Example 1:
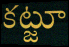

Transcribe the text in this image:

కట్జూ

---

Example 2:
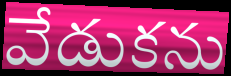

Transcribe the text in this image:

వేడుకను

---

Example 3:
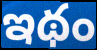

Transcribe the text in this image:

ఇథం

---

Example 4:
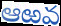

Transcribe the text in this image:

ఆఱవ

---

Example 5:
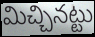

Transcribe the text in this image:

మిచ్చినట్టు